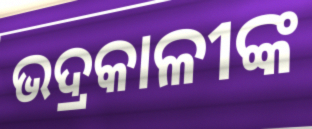
ଭଦ୍ରକାଳୀଙ୍କ